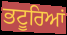
ਭਟੂਰਿਆਂ